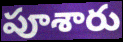
పూశారు